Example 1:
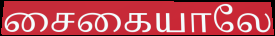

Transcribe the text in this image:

சைகையாலே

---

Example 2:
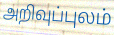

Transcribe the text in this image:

அறிவுப்புலம்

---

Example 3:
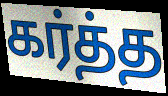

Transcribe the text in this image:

கர்த்த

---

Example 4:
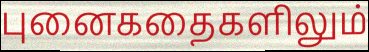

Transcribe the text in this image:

புனைகதைகளிலும்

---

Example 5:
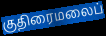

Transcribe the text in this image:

குதிரைமலைப்